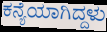
ಕನ್ಯೆಯಾಗಿದ್ದಳು